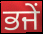
ਭਜੇਂ